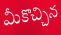
మీకొచ్చిన